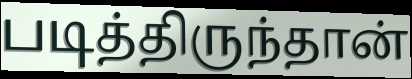
படித்திருந்தான்